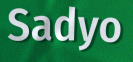
Sadyo